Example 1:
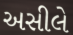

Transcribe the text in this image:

અસીલે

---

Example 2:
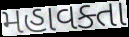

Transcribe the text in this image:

મહાવક્તા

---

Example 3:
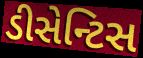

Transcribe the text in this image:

ડીસેન્ટિસ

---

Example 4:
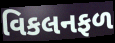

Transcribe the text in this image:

વિકલનફળ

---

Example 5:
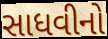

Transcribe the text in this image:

સાધવીનો